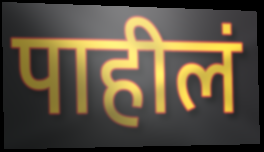
पाहीलं